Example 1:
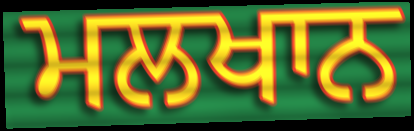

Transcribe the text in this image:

ਮਲਖਾਨ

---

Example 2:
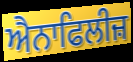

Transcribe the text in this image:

ਐਨਾਫਿਲੀਜ਼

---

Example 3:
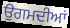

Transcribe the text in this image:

ਉਗਮਦੀਆਂ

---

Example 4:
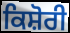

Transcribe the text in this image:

ਕਿਸ਼ੋਰੀ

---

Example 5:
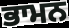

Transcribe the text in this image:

ਭਾਮਨ